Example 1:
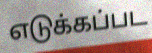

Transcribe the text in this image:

எடுக்கப்பட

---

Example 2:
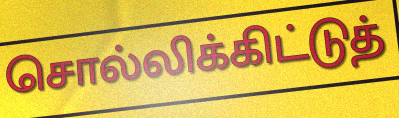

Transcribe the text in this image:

சொல்லிக்கிட்டுத்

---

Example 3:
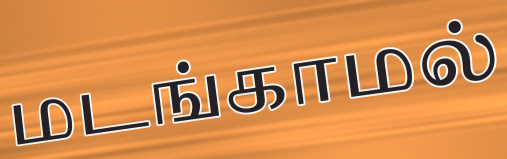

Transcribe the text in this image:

மடங்காமல்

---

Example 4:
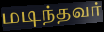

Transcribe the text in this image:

மடிந்தவர்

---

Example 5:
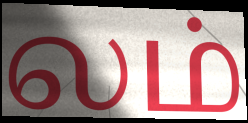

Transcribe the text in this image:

லம்